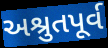
અશ્રુતપૂર્વ